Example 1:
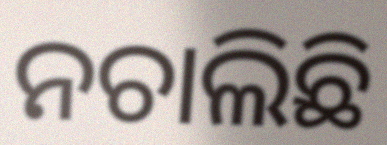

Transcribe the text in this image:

ନଚାଲିଛି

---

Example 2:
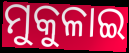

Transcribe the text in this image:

ମୁକୁଳାଇ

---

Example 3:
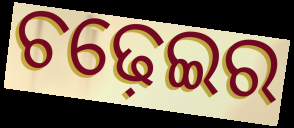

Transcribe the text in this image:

ଚଢ଼େଇର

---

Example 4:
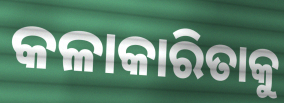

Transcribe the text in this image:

କଳାକାରିତାକୁ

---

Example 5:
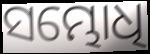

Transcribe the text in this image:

ସମ୍ଭୋଧି